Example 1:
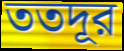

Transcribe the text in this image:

ততদূর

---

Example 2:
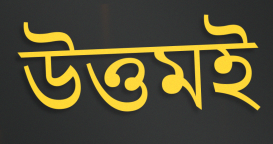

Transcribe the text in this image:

উত্তমই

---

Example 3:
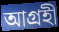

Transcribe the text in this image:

আগ্রহী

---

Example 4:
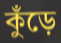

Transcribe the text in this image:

কুঁড়ে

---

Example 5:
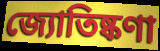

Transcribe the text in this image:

জ্যোতিষ্কণা